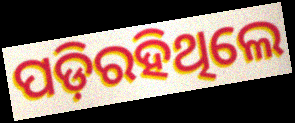
ପଡ଼ିରହିଥିଲେ